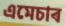
এমেচাৰ